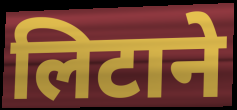
लिटाने